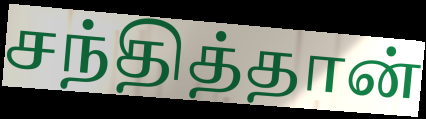
சந்தித்தான்